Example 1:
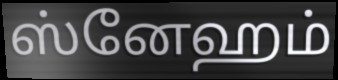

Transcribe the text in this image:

ஸ்னேஹம்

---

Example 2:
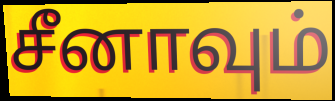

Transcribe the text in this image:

சீனாவும்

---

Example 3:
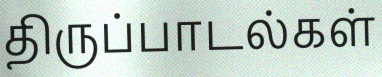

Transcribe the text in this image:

திருப்பாடல்கள்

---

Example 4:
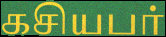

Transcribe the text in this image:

கசியபர்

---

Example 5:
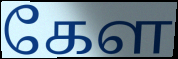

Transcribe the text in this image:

கேள